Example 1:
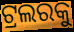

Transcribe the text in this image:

ଟ୍ରଲରକୁ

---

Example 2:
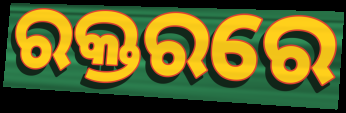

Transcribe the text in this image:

ରକ୍ତରରେ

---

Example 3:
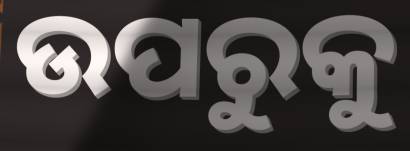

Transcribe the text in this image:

ଉପରୁକୁ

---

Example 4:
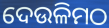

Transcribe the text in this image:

ଦେଉଳିମଠ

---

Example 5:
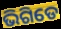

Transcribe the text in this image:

ଭିଗିଡେ